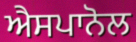
ਐਸਪਾਨੋਲ